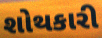
શોથકારી